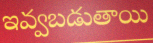
ఇవ్వబడుతాయి